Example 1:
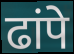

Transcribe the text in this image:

ढांपे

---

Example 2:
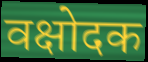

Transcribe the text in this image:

वक्षोदक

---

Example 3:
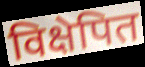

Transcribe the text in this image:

विक्षेपित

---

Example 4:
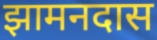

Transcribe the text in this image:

झामनदास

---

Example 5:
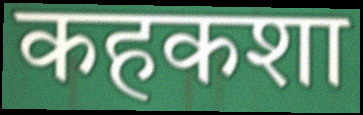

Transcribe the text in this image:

कहकशा